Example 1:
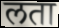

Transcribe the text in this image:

लता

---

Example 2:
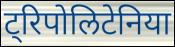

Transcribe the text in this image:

ट्रिपोलिटेनिया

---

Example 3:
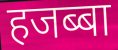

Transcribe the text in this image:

हजब्बा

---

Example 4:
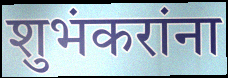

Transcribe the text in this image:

शुभंकरांना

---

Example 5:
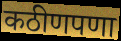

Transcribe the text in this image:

कठीणपणा